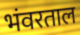
भंवरताल